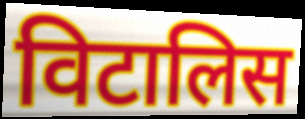
विटालिस